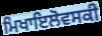
ਮਿਖਾਇਲੋਵਸਕੀ